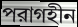
পরাগহীন